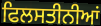
ਫਿਲਸਤੀਨੀਆਂ